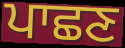
ਪਾਛਣ